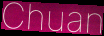
Chuan